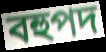
বহুপদ